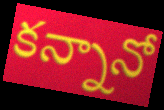
కన్నానో